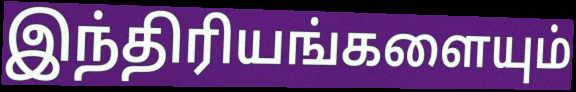
இந்திரியங்களையும்